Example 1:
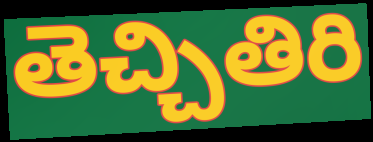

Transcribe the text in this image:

తెచ్చితిరి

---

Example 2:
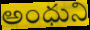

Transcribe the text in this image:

అంధుని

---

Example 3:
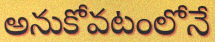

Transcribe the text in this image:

అనుకోవటంలోనే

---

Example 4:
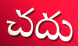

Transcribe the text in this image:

చదు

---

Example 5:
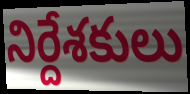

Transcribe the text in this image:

నిర్దేశకులు